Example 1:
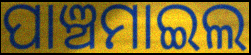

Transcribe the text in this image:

ପାଞ୍ଚମାଇଲ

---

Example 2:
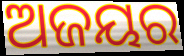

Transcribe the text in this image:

ଅଜୟର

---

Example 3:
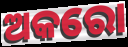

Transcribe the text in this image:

ଅକରୋ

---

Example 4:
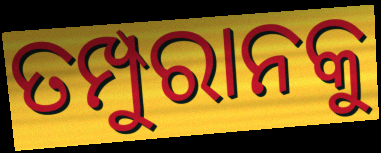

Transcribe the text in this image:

ତମ୍ପୁରାନକୁ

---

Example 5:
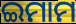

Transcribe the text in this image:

ଇମାମ